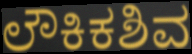
ಲೌಕಿಕಶಿವ